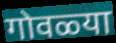
गोवळ्या